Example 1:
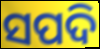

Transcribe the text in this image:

ସପଦି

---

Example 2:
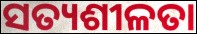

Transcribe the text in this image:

ସତ୍ୟଶୀଳତା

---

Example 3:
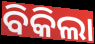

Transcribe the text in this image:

ବିକିଲା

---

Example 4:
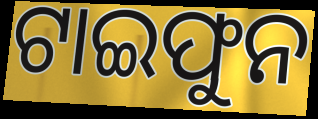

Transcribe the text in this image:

ଟାଇଫୁନ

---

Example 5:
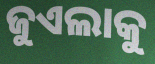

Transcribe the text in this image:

ଜୁଏଲାକୁ